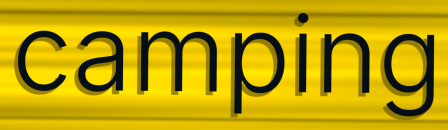
camping